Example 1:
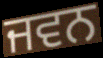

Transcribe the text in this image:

ਜਵਨ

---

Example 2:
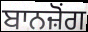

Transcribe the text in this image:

ਬਾਨਜ਼ੋਂਗ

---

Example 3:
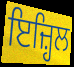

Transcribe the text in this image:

ਇਜ਼੍ਹਿਲ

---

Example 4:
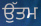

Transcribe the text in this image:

ਉੱਤਮ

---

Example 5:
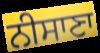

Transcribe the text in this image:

ਨੀਸਾਣਾ